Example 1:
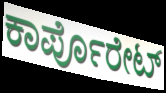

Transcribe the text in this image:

ಕಾರ್ಪೊರೇಟ್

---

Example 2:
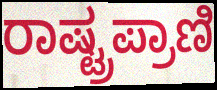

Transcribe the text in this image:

ರಾಷ್ಟ್ರಪ್ರಾಣಿ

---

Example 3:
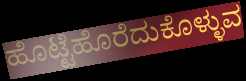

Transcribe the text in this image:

ಹೊಟ್ಟೆಹೊರೆದುಕೊಳ್ಳುವ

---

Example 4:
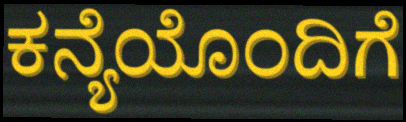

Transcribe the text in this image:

ಕನ್ಯೆಯೊಂದಿಗೆ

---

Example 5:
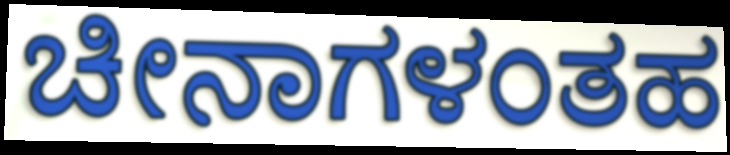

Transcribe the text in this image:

ಚೀನಾಗಳಂತಹ